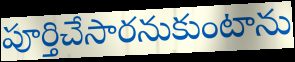
పూర్తిచేసారనుకుంటాను